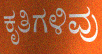
ಕೃತಿಗಳಿವು